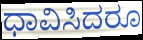
ಧಾವಿಸಿದರೂ